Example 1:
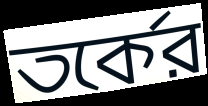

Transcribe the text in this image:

তর্কের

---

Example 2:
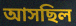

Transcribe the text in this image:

আসছিল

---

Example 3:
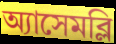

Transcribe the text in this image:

অ্যাসেমব্লি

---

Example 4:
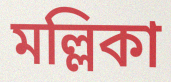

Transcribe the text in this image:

মল্লিকা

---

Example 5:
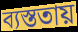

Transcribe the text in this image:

ব্যস্ততায়